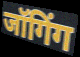
जॉगिंग